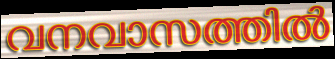
വനവാസത്തിൽ